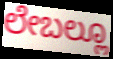
ಲೇಬಲ್ಲೂ